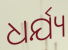
ଧର୍ଯ୍ୟ